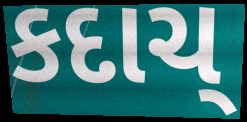
કદાચ્